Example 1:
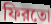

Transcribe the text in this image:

ফিরতো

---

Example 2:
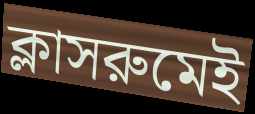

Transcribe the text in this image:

ক্লাসরুমেই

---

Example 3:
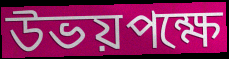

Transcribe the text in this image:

উভয়পক্ষে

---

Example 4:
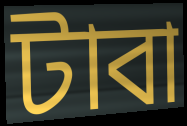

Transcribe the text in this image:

টাবা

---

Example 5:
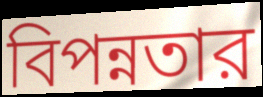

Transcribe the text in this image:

বিপন্নতার